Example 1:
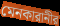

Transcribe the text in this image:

মেনকারানীর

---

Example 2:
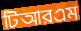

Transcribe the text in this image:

টিআরএম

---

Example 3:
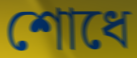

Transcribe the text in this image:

শোধে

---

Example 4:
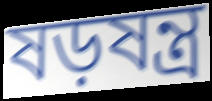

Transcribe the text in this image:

ষড়ষন্ত্র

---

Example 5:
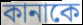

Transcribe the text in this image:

কানাকে